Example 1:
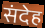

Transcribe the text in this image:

संदेह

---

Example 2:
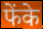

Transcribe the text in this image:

फेंके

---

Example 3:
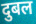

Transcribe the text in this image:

दुबल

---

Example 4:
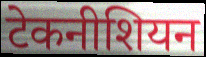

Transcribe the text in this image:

टेकनीशियन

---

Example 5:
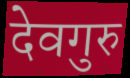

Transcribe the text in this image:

देवगुरु